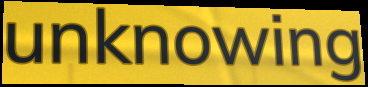
unknowing